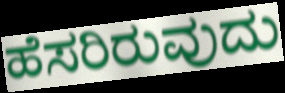
ಹೆಸರಿರುವುದು